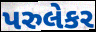
પરુલેકર